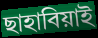
ছাহাবিয়াই